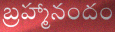
బ్రహ్మానందం